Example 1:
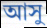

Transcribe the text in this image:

আসু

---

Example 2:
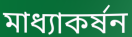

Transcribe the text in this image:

মাধ্যাকর্ষন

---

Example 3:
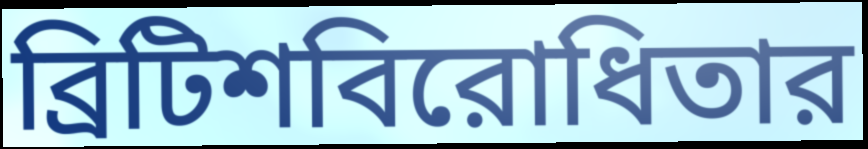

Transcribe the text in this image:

ব্রিটিশবিরোধিতার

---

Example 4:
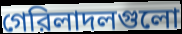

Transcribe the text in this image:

গেরিলাদলগুলো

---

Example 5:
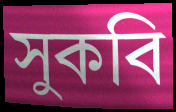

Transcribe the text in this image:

সুকবি